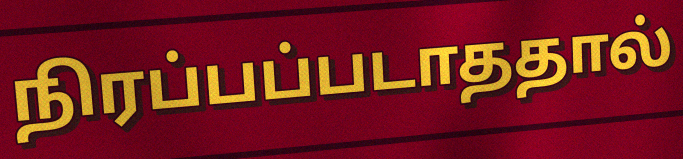
நிரப்பப்படாததால்